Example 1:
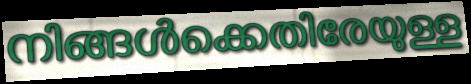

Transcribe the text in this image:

നിങ്ങൾക്കെതിരേയുള്ള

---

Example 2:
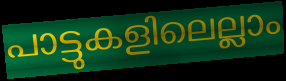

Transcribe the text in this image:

പാട്ടുകളിലെല്ലാം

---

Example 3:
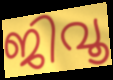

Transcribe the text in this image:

ജിവൂ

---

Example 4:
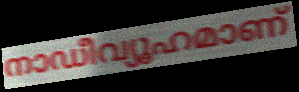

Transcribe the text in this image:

നാഡീവ്യൂഹമാണ്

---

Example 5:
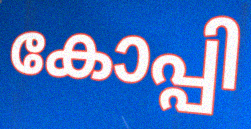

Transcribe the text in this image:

കോപ്പി